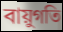
বায়ুগতি